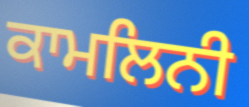
ਕਾਮਲਿਨੀ